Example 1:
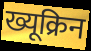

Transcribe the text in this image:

ख्यूक्रिन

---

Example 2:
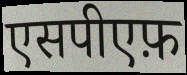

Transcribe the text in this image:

एसपीएफ़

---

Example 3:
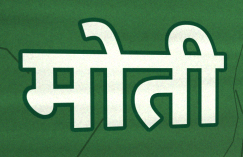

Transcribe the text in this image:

मोती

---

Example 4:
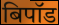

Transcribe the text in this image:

बिपॉड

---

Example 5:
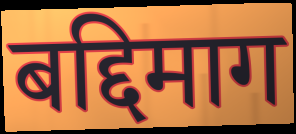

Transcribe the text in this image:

बद्दिमाग